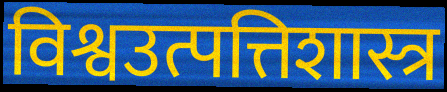
विश्वउत्पत्तिशास्त्र